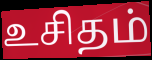
உசிதம்